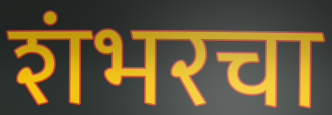
शंभरचा